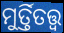
ମୁର୍ତ୍ତିତତ୍ତ୍ବ